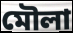
মৌলা